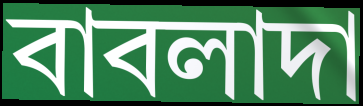
বাবলাদা